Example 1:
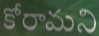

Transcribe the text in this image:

కోరామని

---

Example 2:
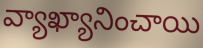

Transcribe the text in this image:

వ్యాఖ్యానించాయి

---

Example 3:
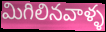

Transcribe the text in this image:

మిగిలినవాళ్ళ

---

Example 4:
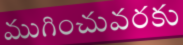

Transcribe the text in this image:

ముగించువరకు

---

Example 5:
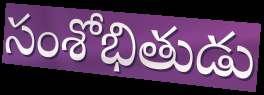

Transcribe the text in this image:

సంశోభితుడు